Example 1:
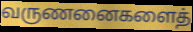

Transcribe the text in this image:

வருணனைகளைத்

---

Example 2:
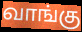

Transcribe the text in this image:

வாங்கு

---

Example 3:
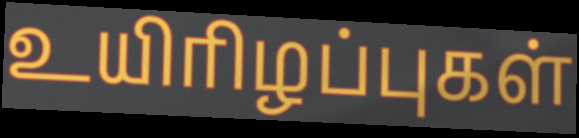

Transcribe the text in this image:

உயிரிழப்புகள்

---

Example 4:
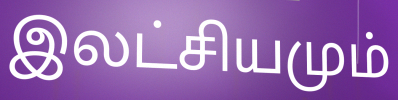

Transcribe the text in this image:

இலட்சியமும்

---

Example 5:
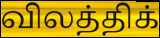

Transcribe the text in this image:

விலத்திக்